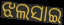
ଝଲସାଇ